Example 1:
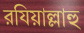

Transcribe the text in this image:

রযিয়াল্লাহু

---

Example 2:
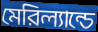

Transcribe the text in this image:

মেরিল্যান্ডে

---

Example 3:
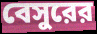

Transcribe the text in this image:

বেসুরের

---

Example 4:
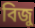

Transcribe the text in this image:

বিজু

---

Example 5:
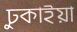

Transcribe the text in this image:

ঢুকাইয়া